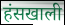
हंसखाली